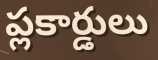
ప్లకార్డులు